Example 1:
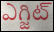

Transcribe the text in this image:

ఎగ్జిట్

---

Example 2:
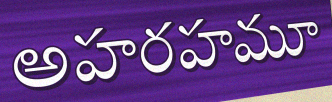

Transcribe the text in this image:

అహరహమూ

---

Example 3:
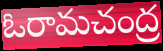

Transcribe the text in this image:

ఓరామచంద్ర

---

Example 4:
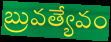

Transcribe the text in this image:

బ్రువత్యేవం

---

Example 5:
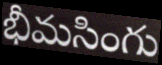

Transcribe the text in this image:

భీమసింగు